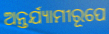
ଅନ୍ତର୍ଯ୍ୟାମୀରୂପେ